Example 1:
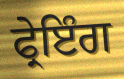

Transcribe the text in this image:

ਫ੍ਰੇਇੰਗ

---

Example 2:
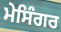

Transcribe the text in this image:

ਮੇਸਿੰਗਰ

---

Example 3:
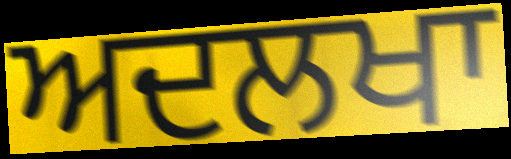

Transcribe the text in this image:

ਅਦਲਖਾ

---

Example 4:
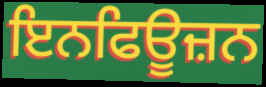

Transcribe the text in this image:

ਇਨਫਿਊਜ਼ਨ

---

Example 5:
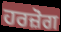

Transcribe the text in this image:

ਹਰਜ਼ੋਗ